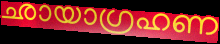
ഛായാഗ്രഹണ